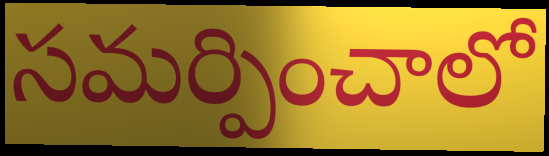
సమర్పించాలో